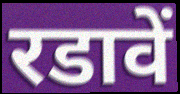
रडावें